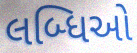
લબ્ધિઓ